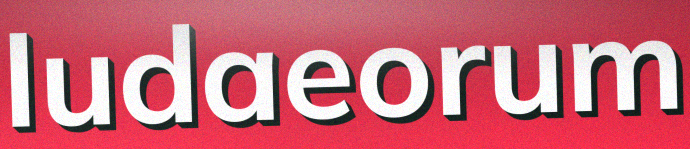
Iudaeorum